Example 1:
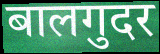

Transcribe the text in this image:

बालगुदर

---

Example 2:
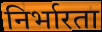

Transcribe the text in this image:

निर्भारता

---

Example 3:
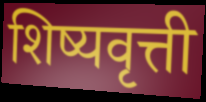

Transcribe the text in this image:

शिष्यवृत्ती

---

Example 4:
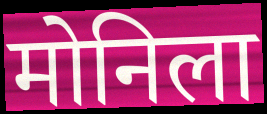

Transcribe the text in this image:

मोनिला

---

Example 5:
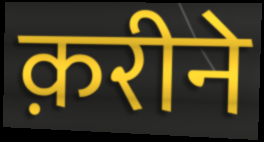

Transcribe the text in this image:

क़रीने